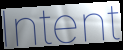
Intent